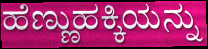
ಹೆಣ್ಣುಹಕ್ಕಿಯನ್ನು